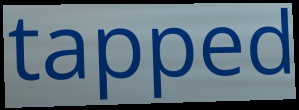
tapped